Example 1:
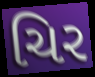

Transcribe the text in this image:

ચિર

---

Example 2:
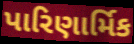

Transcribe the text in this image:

પારિણાર્મિક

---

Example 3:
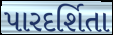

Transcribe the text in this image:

પારદર્શિતા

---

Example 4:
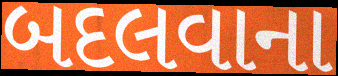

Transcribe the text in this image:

બદલવાના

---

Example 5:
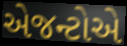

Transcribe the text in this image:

એજન્ટોએ